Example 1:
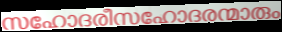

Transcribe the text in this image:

സഹോദരീസഹോദരന്മാരും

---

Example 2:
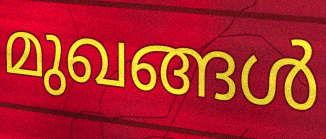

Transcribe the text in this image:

മുഖങ്ങൾ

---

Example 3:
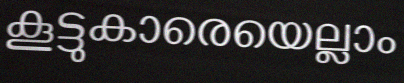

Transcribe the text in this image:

കൂട്ടുകാരെയെല്ലാം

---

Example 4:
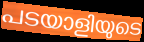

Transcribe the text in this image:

പടയാളിയുടെ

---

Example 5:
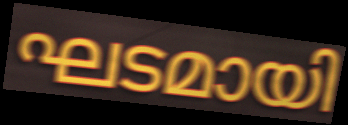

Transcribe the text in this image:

ഘടമായി